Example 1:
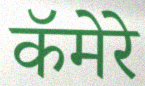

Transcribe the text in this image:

कॅमेरे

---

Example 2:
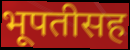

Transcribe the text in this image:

भूपतीसह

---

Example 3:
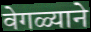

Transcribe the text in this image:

वेगळ्याने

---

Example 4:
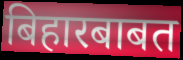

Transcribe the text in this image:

बिहारबाबत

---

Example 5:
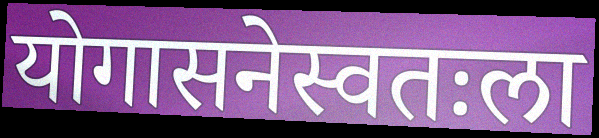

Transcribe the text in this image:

योगासनेस्वतःला